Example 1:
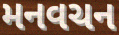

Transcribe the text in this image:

મનવચન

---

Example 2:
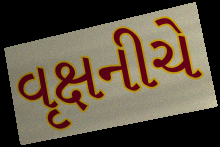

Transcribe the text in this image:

વૃક્ષનીચે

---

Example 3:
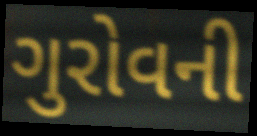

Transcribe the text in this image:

ગુરોવની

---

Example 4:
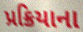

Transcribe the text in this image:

પ્રક્રિયાના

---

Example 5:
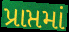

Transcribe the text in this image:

પ્રાપ્તમાં